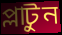
প্লাটুন